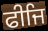
ਫੀਜਿ